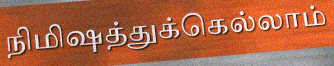
நிமிஷத்துக்கெல்லாம்